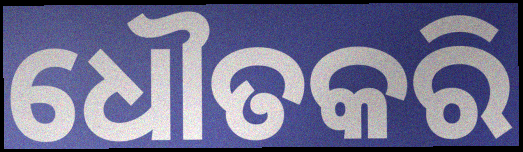
ଧୌତକରି